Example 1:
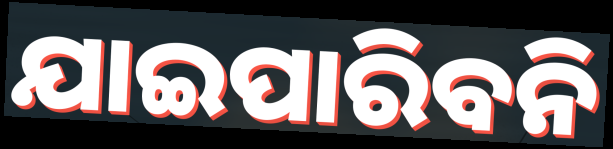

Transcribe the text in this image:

ଯାଇପାରିବନି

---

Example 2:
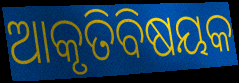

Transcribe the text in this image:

ଆକୃତିବିଷୟକ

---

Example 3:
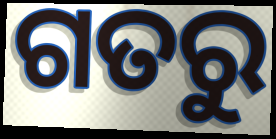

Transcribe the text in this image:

ଗତରୁ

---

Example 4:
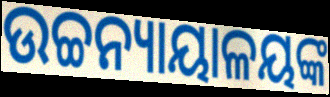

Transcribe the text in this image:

ଉଚ୍ଚନ୍ୟାୟାଳୟଙ୍କ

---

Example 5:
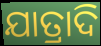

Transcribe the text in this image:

ଯାତ୍ରାଦି